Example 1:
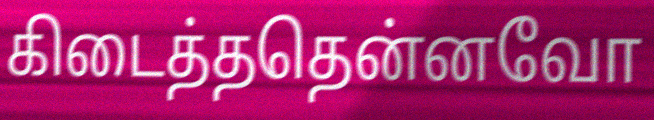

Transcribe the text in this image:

கிடைத்ததென்னவோ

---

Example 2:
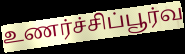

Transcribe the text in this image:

உணர்ச்சிப்பூர்வ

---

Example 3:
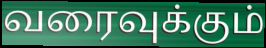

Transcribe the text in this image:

வரைவுக்கும்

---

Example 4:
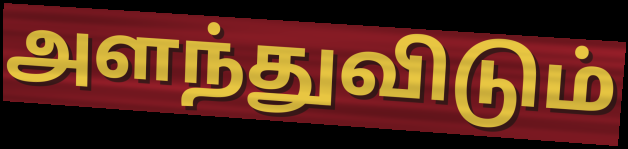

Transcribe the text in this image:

அளந்துவிடும்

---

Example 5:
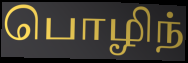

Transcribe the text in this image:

பொழிந்